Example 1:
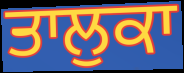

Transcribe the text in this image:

ਤਾਲੁਕਾ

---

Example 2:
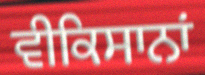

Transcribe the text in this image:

ਵੀਕਿਸਾਨਾਂ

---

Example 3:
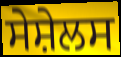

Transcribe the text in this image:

ਸੇਸ਼ੇਲਸ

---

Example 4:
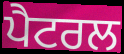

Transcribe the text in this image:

ਪੈਟਰਲ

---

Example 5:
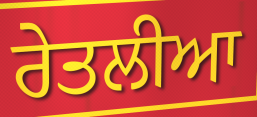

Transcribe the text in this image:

ਰੇਤਲੀਆ